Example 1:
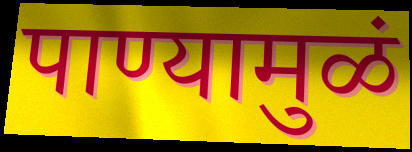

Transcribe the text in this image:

पाण्यामुळं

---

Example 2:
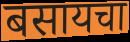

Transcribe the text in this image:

बसायचा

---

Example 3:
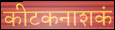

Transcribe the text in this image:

कीटकनाशकं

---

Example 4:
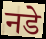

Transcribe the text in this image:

नडे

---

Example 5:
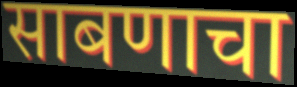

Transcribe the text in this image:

साबणाचा